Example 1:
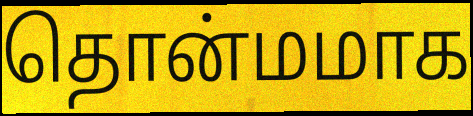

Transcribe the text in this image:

தொன்மமாக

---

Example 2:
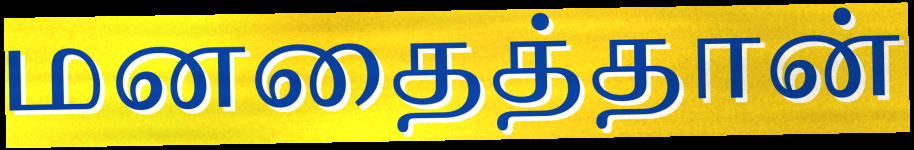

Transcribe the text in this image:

மனதைத்தான்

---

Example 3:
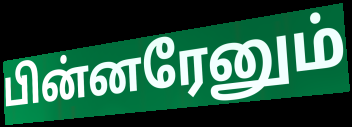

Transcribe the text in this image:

பின்னரேனும்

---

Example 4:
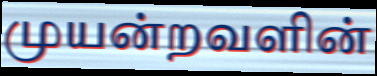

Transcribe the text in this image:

முயன்றவளின்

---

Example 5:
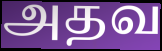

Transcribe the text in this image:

அதவ